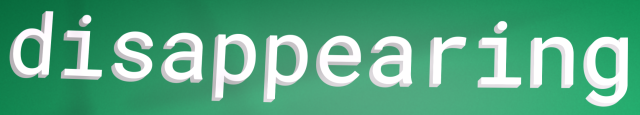
disappearing